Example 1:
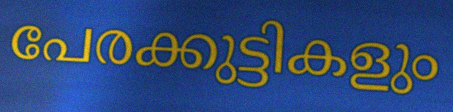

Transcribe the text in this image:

പേരക്കുട്ടികളും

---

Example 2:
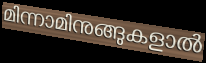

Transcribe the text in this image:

മിന്നാമിനുങ്ങുകളാൽ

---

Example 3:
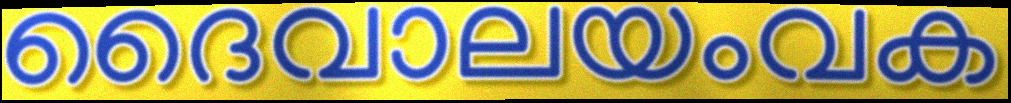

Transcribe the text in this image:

ദൈവാലയംവക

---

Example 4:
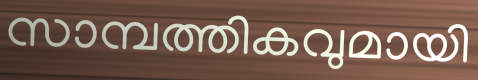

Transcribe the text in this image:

സാമ്പത്തികവുമായി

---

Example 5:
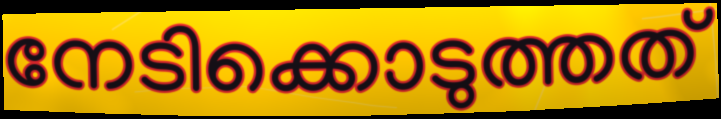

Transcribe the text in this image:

നേടിക്കൊടുത്തത്